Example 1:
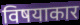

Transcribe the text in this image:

विषयाकार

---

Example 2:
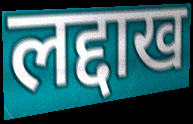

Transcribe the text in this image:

लद्दाख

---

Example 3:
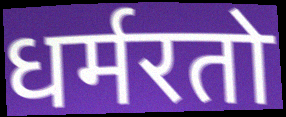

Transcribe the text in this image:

धर्मरतो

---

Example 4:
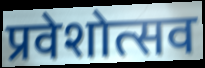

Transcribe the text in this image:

प्रवेशोत्सव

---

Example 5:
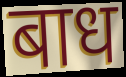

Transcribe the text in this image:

बाध